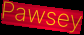
Pawsey